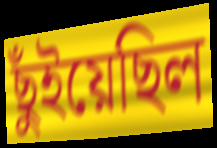
ছুঁইয়েছিল